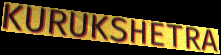
KURUKSHETRA